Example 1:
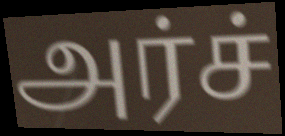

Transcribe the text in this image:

அர்ச்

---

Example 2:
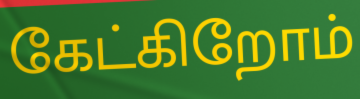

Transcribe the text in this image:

கேட்கிறோம்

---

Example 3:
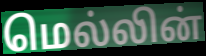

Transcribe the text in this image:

மெல்லின்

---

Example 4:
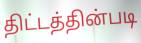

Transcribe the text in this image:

திட்டத்தின்படி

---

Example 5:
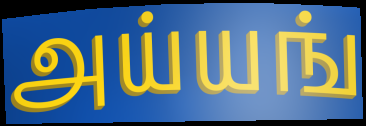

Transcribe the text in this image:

அய்யங்